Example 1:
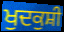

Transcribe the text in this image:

ਖੁਦਕੁਸ਼ੀ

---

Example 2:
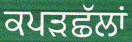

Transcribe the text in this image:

ਕਪੜਛੱਲਾਂ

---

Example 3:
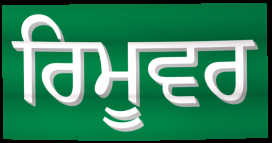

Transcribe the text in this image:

ਰਿਮੂਵਰ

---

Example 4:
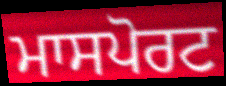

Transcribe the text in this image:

ਮਾਸਪੋਰਟ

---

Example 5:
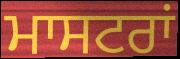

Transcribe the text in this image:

ਮਾਸਟਰਾਂ